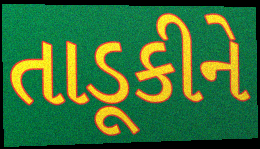
તાડૂકીને